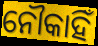
ନୌକାହିଁ